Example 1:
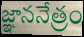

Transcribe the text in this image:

జ్ఞాననేత్రం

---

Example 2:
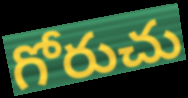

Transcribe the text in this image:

గోరుచు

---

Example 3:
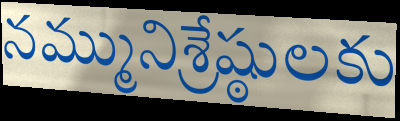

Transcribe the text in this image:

నమ్మునిశ్రేష్ఠులకు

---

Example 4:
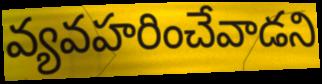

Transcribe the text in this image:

వ్యవహరించేవాడని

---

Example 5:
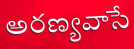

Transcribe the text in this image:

అరణ్యవాసే